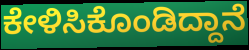
ಕೇಳಿಸಿಕೊಂಡಿದ್ದಾನೆ